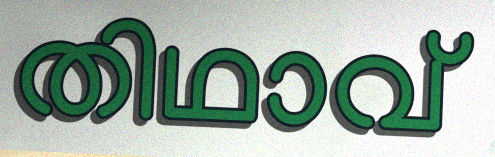
തിഥാവ്